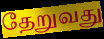
தேறுவது